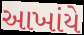
આખાંયે